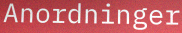
Anordninger